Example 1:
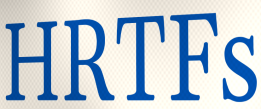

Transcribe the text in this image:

HRTFs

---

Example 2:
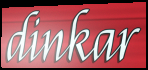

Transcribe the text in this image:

dinkar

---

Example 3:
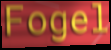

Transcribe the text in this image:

Fogel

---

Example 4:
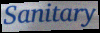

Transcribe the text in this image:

Sanitary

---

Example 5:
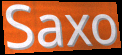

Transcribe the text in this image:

Saxo